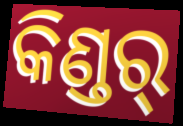
କିଣ୍ଡର୍